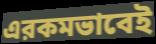
এরকমভাবেই